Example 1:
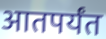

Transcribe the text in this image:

आतपर्यंत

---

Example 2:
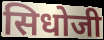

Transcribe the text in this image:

सिधोजी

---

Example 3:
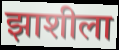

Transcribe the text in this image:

झाशीला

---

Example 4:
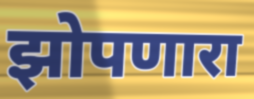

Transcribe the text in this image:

झोपणारा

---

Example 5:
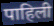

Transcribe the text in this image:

पाहिली